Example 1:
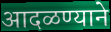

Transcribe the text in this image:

आदळण्याने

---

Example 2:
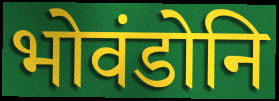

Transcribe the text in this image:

भोवंडोनि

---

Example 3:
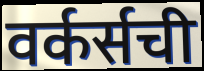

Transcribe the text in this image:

वर्कर्सची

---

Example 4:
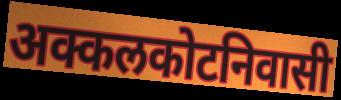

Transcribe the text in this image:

अक्कलकोटनिवासी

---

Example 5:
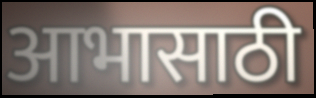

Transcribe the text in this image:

आभासाठी